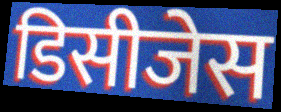
डिसीजेस